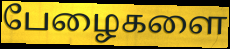
பேழைகளை